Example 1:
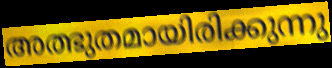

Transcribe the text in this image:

അത്ഭുതമായിരിക്കുന്നു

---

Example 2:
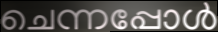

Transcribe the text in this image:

ചെന്നപ്പോൾ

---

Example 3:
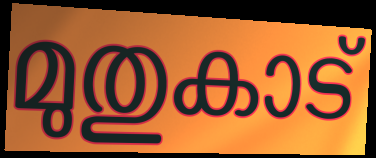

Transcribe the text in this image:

മുതുകാട്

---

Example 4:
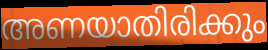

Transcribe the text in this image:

അണയാതിരിക്കും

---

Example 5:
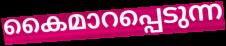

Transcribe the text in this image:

കൈമാറപ്പെടുന്ന